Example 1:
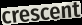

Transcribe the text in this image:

crescent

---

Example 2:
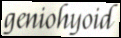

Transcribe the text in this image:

geniohyoid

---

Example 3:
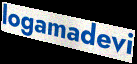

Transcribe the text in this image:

logamadevi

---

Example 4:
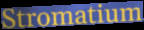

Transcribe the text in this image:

Stromatium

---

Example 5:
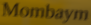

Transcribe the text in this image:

Mombaym